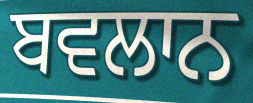
ਬਵਲਾਨ